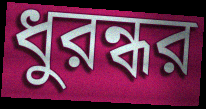
ধুরন্ধর